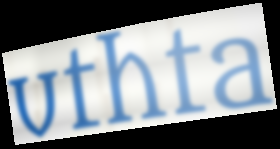
uthta